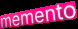
memento